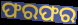
ଫରଫର